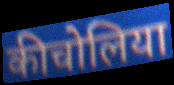
कीचोलिया